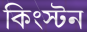
কিংস্টন